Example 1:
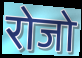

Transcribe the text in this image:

रोजो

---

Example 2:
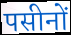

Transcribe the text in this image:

पसीनों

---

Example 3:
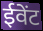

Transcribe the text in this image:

ईवेंट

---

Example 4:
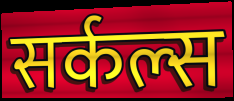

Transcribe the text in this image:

सर्कल्‍स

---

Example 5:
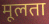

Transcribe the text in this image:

मूलता